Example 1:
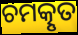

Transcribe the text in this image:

ଚମତ୍କୃତ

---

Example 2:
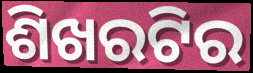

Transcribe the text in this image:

ଶିଖରଟିର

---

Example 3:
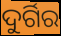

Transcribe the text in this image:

ଦୁର୍ଗିର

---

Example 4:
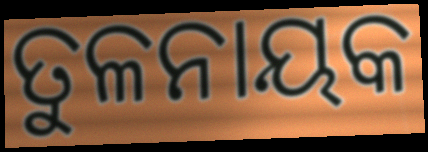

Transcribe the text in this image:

ତୁଳନାୟକ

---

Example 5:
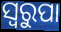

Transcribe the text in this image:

ସ୍ୱରୁପା